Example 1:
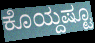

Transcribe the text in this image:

ಕೊಯ್ದಷ್ಟೂ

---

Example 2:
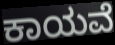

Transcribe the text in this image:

ಕಾಯವೆ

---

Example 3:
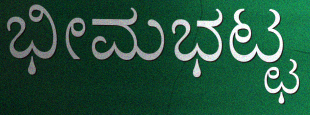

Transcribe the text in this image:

ಭೀಮಭಟ್ಟ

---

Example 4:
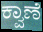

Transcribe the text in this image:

ಕ್ವಾಣೆ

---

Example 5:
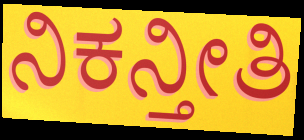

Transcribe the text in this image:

ನಿಕನ್ತೀತಿ